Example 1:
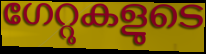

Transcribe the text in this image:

ഗേറ്റുകളുടെ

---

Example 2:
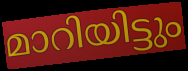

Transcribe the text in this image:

മാറിയിട്ടും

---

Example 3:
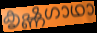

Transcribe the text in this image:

കൃഷ്ണഗാഥാ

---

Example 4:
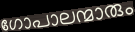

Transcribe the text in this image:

ഗോപാലന്മാരും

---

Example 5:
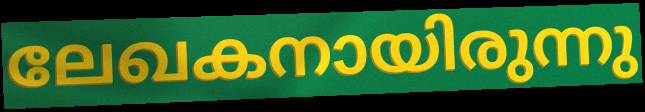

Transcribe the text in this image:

ലേഖകനായിരുന്നു